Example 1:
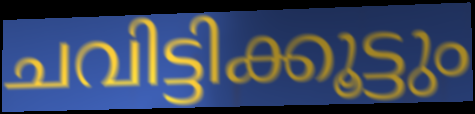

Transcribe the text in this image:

ചവിട്ടിക്കൂട്ടും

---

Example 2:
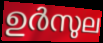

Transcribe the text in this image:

ഉർസുല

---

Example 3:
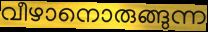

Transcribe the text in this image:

വീഴാനൊരുങ്ങുന്ന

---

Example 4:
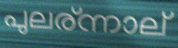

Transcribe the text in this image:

പുലര്ന്നാല്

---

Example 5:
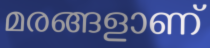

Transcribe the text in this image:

മരങ്ങളാണ്